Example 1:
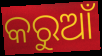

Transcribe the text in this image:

କରୁଆଁ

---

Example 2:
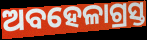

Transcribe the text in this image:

ଅବହେଳାଗ୍ରସ୍ତ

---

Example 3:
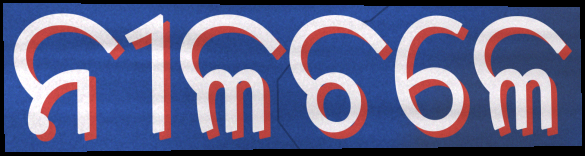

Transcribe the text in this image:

ନୀଳଚଳେ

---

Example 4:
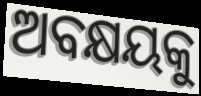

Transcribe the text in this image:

ଅବକ୍ଷୟକୁ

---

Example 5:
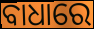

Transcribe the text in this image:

ବାଧାରେ